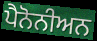
ਪੈਨੋਨੀਅਨ